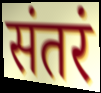
संतरं